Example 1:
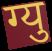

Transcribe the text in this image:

ग्यु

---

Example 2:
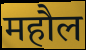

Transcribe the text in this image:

महौल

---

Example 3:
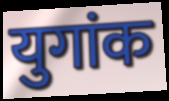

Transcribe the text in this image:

युगांक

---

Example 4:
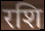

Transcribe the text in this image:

रशि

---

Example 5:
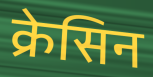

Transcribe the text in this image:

क्रेसिन